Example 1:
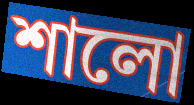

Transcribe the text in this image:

শালো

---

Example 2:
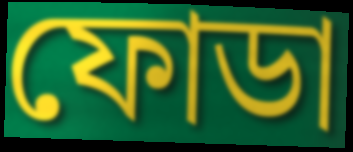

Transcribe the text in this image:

ফোডা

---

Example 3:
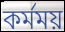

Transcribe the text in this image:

কর্মময়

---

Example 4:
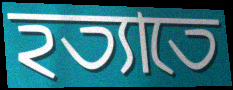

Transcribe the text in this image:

হত্যাতে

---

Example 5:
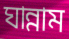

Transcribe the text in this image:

ঘান্নাম